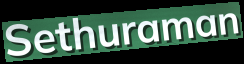
Sethuraman